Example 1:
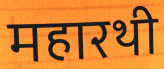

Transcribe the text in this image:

महारथी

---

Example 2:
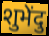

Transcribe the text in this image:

शुभेंदु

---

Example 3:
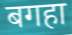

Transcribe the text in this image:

बगहा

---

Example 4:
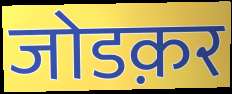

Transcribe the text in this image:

जोडक़र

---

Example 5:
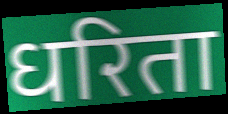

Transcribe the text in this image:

धरिता